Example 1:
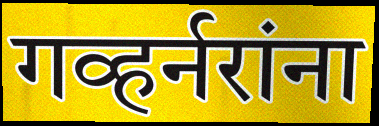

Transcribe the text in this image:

गव्हर्नरांना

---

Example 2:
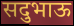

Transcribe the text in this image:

सदुभाऊ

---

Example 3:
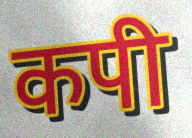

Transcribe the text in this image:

कपी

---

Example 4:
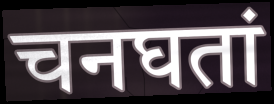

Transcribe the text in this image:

चनघतां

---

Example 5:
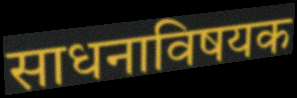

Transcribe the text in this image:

साधनाविषयक